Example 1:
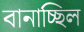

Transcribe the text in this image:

বানাচ্ছিল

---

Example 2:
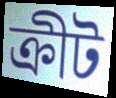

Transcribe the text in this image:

ক্রীট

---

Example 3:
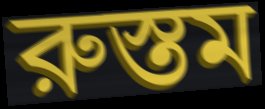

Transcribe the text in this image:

রুস্তম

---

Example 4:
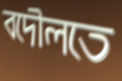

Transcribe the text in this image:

বদৌলতে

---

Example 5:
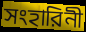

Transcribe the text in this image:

সংহারিনী